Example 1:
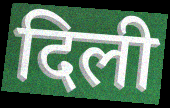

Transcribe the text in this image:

दिली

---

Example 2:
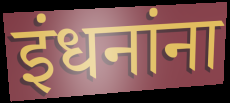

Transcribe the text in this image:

इंधनांना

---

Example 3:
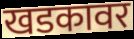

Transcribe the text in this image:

खडकावर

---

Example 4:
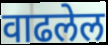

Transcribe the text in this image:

वाढलेल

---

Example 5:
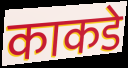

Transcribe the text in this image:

काकडे